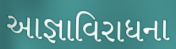
આજ્ઞાવિરાધના